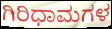
ಗಿರಿಧಾಮಗಳ